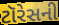
ટૉરેસની